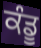
ਕੰਡੂ